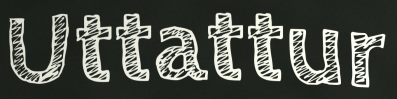
Uttattur